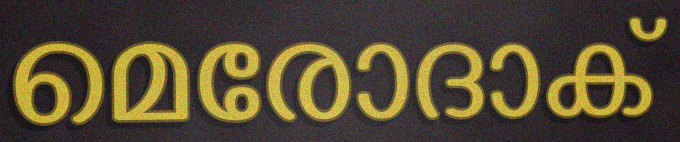
മെരോദാക്